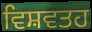
ਵਿਸ਼ਵਤਹ